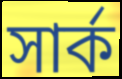
সার্ক